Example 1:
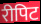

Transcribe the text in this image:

रीपिट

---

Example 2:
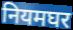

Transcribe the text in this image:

नियमघर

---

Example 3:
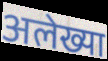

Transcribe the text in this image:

अलेख्या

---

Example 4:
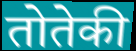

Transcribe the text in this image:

तोतेकी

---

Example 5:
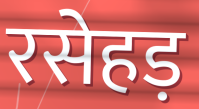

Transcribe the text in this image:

रसेहड़